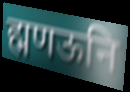
ह्मणऊनि